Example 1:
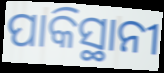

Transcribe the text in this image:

ପାକିସ୍ଥାନୀ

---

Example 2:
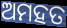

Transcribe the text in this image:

ଅମହତ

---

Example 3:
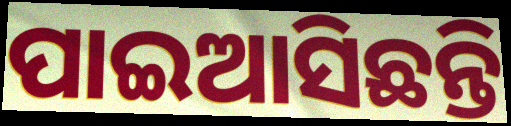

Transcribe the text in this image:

ପାଇଆସିଛନ୍ତି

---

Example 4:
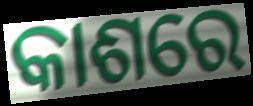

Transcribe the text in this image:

କାଶରେ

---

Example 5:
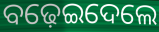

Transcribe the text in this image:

ବଢ଼େଇଦେଲେ